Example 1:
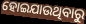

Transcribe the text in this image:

ହୋଇଯାଉଥିବାରୁ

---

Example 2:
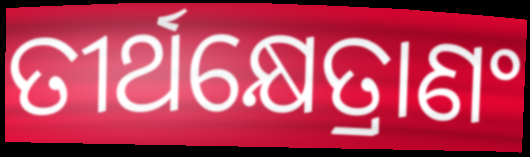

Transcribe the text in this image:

ତୀର୍ଥକ୍ଷେତ୍ରାଣଂ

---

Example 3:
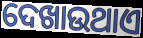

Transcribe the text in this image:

ଦେଖାଉଥାଏ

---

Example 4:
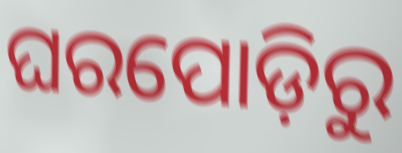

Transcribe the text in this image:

ଘରପୋଡ଼ିରୁ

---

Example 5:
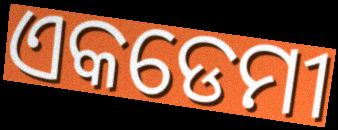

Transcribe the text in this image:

ଏକଡେମୀ